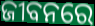
ଜୀବନରେ